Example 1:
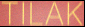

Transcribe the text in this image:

TILAK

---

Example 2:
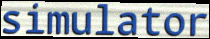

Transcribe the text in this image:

simulator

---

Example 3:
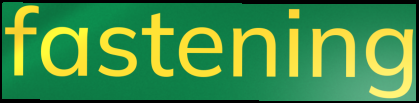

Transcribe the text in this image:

fastening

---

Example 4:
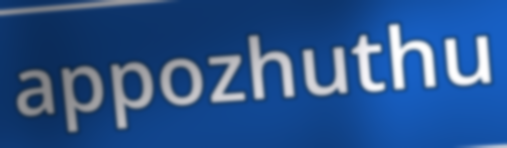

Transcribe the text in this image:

appozhuthu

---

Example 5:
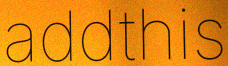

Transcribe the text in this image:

addthis